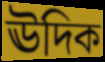
ঊদিক